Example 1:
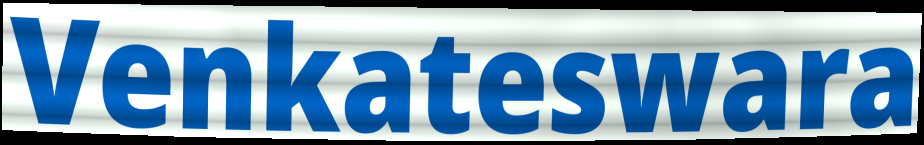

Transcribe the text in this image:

Venkateswara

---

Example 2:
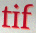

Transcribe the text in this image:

tif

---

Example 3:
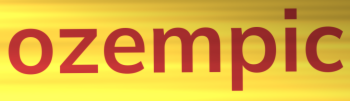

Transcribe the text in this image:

ozempic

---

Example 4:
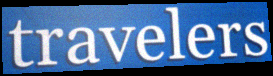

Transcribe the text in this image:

travelers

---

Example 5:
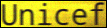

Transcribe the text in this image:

Unicef